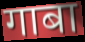
गाबा